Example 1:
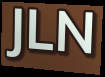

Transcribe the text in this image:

JLN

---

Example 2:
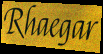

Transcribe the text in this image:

Rhaegar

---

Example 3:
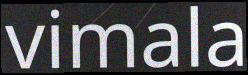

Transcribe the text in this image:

vimala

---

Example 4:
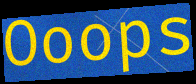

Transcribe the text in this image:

Ooops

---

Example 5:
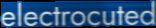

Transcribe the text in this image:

electrocuted